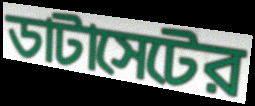
ডাটাসেটের